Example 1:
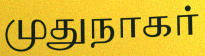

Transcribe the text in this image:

முதுநாகர்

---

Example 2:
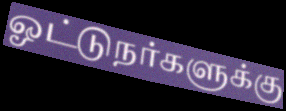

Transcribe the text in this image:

ஓட்டுநர்களுக்கு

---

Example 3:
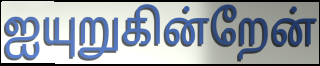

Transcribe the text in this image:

ஐயுறுகின்றேன்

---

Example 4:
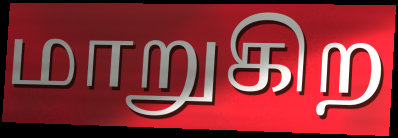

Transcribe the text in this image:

மாறுகிற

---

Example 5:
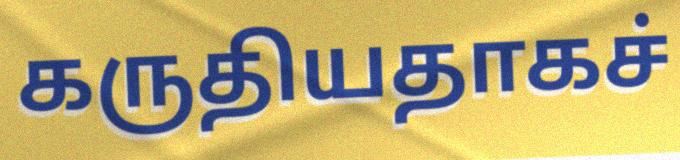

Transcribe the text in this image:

கருதியதாகச்